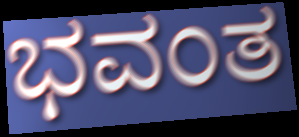
ಭವಂತ